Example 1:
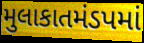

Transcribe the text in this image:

મુલાકાતમંડપમાં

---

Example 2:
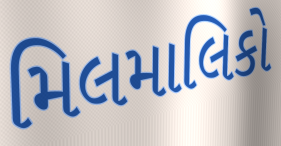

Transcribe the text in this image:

મિલમાલિકો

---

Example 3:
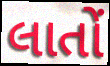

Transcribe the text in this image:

લાતોં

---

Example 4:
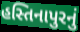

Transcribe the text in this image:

હસ્તિનાપુરનું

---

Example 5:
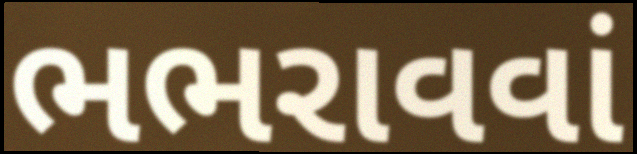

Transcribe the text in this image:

ભભરાવવાં